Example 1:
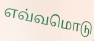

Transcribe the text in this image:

எவ்வமொடு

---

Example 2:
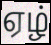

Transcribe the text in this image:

ஏழ்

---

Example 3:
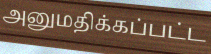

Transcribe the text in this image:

அனுமதிக்கப்பட்ட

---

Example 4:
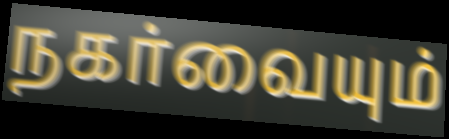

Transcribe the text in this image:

நகர்வையும்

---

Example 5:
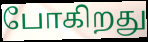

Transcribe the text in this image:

போகிறது